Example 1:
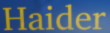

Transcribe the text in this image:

Haider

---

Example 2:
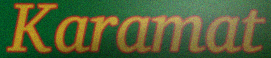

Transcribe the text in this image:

Karamat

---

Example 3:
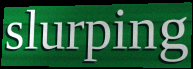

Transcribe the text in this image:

slurping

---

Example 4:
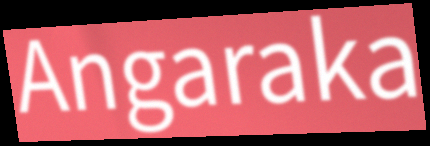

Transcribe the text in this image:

Angaraka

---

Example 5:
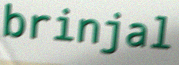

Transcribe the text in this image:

brinjal